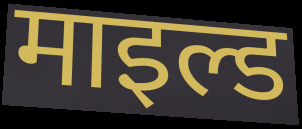
माइल्ड